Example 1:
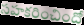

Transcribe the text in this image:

సహకరించిందో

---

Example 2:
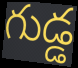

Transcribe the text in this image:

గుడ్డ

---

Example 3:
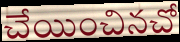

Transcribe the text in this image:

చేయించినచో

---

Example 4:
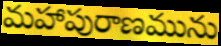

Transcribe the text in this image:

మహాపురాణమును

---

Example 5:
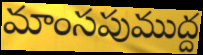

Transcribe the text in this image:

మాంసపుముద్ద